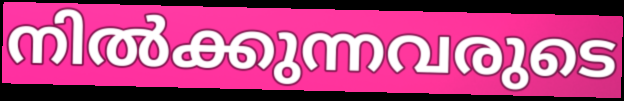
നിൽക്കുന്നവരുടെ